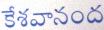
కేశవానంద